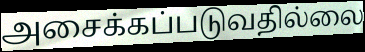
அசைக்கப்படுவதில்லை